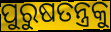
ପୁରୁଷତନ୍ତ୍ରକୁ